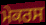
ਮੇਕਰਸ